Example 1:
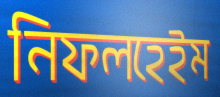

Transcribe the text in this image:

নিফলহেইম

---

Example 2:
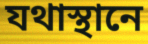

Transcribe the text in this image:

যথাস্থানে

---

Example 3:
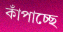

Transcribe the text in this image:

কাঁপাচ্ছে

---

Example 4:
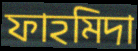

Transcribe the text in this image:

ফাহমিদা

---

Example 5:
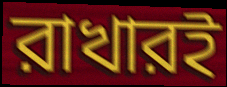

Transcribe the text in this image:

রাখারই